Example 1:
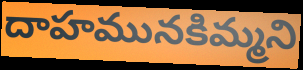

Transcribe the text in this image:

దాహమునకిమ్మని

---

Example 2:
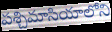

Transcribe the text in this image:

పశ్చిమాసియాలోని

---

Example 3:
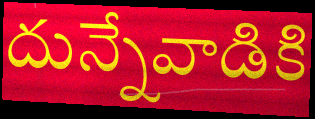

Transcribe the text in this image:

దున్నేవాడికి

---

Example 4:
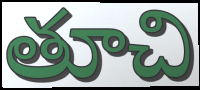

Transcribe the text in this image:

తూచి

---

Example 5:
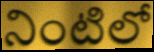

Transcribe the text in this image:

నింటిలో